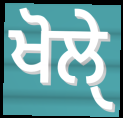
ਖੋਲੑੇ